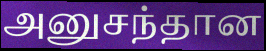
அனுசந்தான